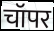
चॉपर